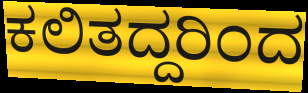
ಕಲಿತದ್ದರಿಂದ